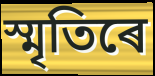
স্মৃতিৰে